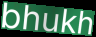
bhukh